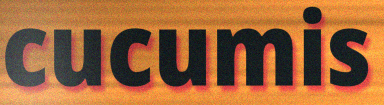
cucumis